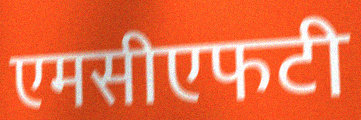
एमसीएफटी